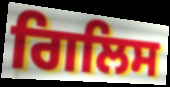
ਗਿਲਿਸ